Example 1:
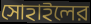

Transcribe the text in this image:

সোহাইলের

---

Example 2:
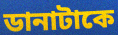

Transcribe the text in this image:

ডানাটাকে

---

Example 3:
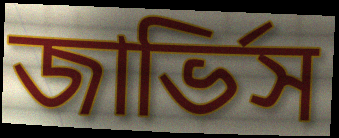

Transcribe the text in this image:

জার্ভিস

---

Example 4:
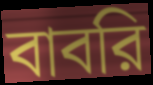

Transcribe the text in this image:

বাবরি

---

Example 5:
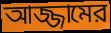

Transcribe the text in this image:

আজ্জামের